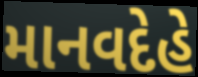
માનવદેહે